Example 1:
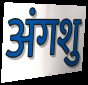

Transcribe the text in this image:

अंगशु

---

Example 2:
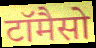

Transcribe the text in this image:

टॉमैसो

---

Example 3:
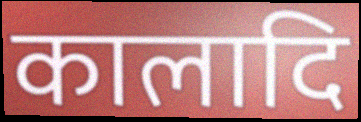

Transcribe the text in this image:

कालादि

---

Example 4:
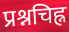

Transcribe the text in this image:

प्रश्नचिह्न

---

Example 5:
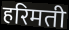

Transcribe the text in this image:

हरिमती